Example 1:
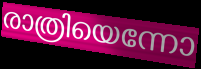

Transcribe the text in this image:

രാത്രിയെന്നോ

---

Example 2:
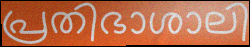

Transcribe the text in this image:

പ്രതിഭാശാലി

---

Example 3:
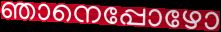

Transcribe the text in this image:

ഞാനെപ്പോഴോ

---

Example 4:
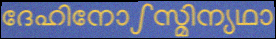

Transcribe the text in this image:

ദേഹിനോഽസ്മിന്യഥാ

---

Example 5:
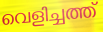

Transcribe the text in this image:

വെളിച്ചത്ത്